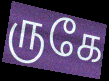
ருகே